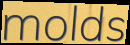
molds